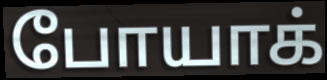
போயாக்